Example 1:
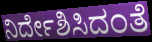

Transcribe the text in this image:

ನಿರ್ದೇಶಿಸಿದಂತೆ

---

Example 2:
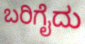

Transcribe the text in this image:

ಬರಿಗೈದು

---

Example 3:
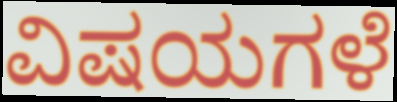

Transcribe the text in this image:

ವಿಷಯಗಳೆ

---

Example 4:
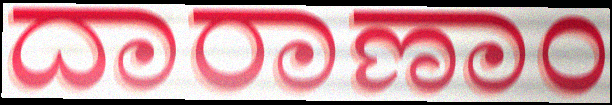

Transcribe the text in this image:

ದಾರಾಣಾಂ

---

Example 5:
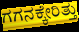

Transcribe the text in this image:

ಗಗನಕ್ಕೇರಿತ್ತು